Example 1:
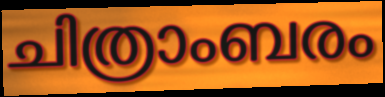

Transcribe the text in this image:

ചിത്രാംബരം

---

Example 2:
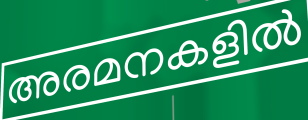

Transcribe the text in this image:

അരമനകളിൽ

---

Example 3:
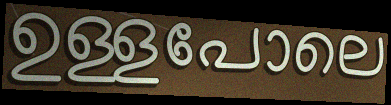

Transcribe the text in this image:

ഉള്ളപോലെ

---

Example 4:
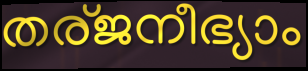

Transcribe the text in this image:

തര്ജനീഭ്യാം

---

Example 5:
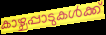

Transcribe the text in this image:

കാഴ്ചപ്പാടുകൾക്ക്